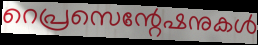
റെപ്രസെന്റേഷനുകൾ